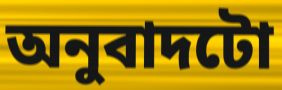
অনুবাদটো